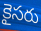
కైసరు